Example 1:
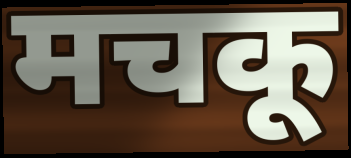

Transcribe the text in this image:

मचकू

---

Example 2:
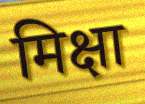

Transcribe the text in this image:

मिक्षा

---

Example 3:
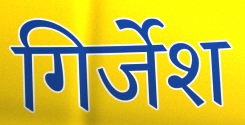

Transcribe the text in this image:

गिर्जेश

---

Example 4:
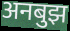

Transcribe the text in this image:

अनबुझ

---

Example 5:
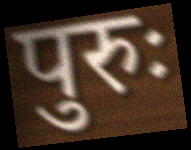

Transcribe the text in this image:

पुरुः